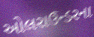
ઓલરાઉન્ડરના